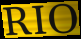
RIO